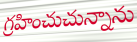
గ్రహించుచున్నాను